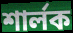
শার্লক